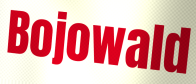
Bojowald